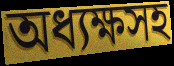
অধ্যক্ষসহ